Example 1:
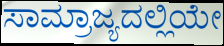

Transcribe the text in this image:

ಸಾಮ್ರಾಜ್ಯದಲ್ಲಿಯೇ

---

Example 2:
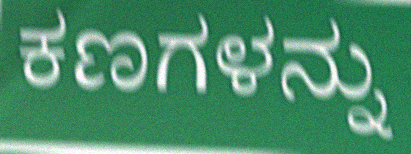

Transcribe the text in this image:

ಕಣಗಳನ್ನು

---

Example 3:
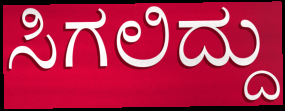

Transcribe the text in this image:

ಸಿಗಲಿದ್ದು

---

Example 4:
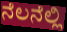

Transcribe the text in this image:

ನೆಲನೆಲ್ಲಿ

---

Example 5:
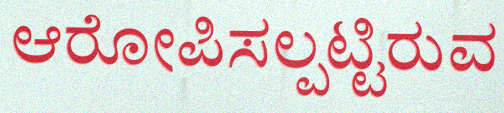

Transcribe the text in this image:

ಆರೋಪಿಸಲ್ಪಟ್ಟಿರುವ